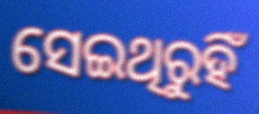
ସେଇଥିରୁହିଁ